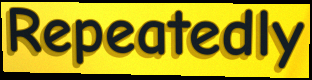
Repeatedly